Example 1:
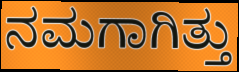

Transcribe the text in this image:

ನಮಗಾಗಿತ್ತು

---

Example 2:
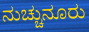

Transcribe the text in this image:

ನುಚ್ಚುನೂರು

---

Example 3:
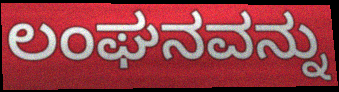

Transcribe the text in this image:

ಲಂಘನವನ್ನು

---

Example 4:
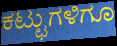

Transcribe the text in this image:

ಕಟ್ಟುಗಳಿಗೂ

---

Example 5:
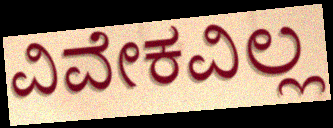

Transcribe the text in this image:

ವಿವೇಕವಿಲ್ಲ